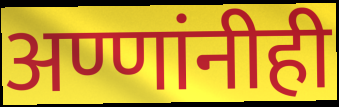
अण्णांनीही